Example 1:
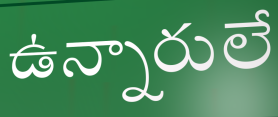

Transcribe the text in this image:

ఉన్నారులే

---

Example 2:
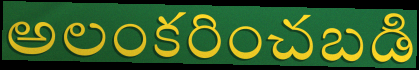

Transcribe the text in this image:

అలంకరించబడి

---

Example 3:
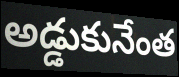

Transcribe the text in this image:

అడ్డుకునేంత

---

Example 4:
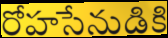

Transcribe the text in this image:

రోహసేనుడికి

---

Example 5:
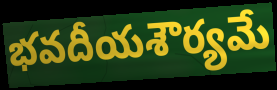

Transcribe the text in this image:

భవదీయశౌర్యమే